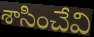
శాసించేవి